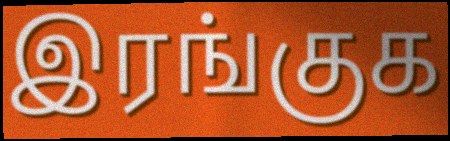
இரங்குக